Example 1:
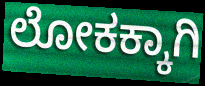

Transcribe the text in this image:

ಲೋಕಕ್ಕಾಗಿ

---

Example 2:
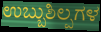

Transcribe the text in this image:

ಉಬ್ಬುಶಿಲ್ಪಗಳ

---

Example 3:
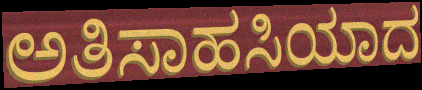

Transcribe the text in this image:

ಅತಿಸಾಹಸಿಯಾದ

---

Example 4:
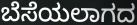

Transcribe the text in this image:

ಬೆಸೆಯಲಾಗದ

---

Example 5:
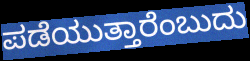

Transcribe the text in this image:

ಪಡೆಯುತ್ತಾರೆಂಬುದು